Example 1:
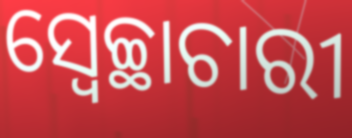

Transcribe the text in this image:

ସ୍ୱେଚ୍ଛାଚାରୀ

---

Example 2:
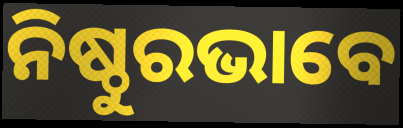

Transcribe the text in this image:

ନିଷ୍ଠୁରଭାବେ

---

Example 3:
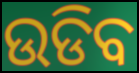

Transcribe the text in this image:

ଉଡିବ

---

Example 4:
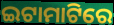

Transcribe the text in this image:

ଇଟାମାଟିରେ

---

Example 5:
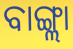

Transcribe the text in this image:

ବାଙ୍ଗ୍ଲା